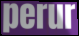
perur